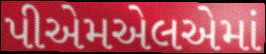
પીએમએલએમાં